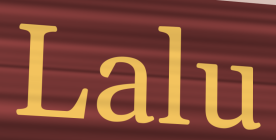
Lalu